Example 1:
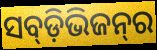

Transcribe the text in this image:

ସବ୍‍ଡ଼ିଭିଜନ୍‍ର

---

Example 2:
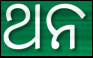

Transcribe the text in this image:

ଥନ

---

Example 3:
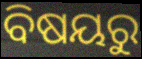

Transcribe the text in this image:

ବିଷୟରୁ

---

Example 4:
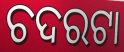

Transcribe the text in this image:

ଚଦରଟା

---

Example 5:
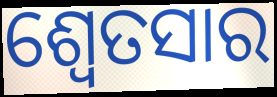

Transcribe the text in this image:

ଶ୍ଵେତସାର